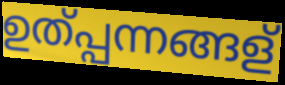
ഉത്പ്പന്നങ്ങള്